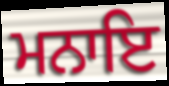
ਮਨਾਇ